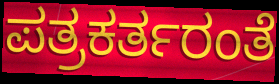
ಪತ್ರಕರ್ತರಂತೆ